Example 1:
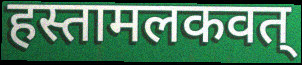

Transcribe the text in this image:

हस्तामलकवत्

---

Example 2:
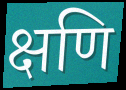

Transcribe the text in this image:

क्षणि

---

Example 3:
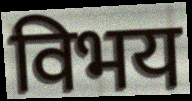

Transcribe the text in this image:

विभय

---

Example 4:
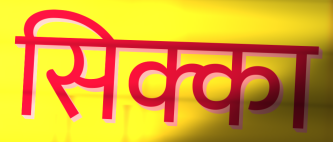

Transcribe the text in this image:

सिक्‍का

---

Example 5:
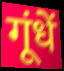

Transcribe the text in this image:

गूंधें